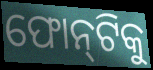
ଫୋନ୍‌ଟିକୁ